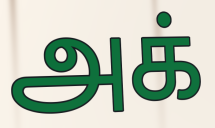
அக்